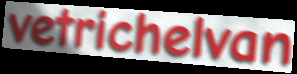
vetrichelvan